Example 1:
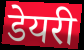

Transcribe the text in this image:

डेयरी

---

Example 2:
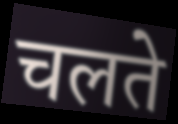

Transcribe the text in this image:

चलते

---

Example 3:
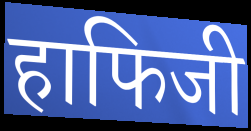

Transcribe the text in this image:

हाफिजी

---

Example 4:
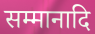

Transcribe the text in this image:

सम्मानादि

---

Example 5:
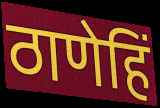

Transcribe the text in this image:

ठाणेहिं